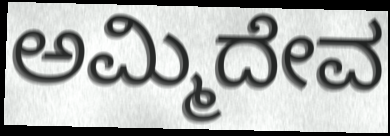
ಅಮ್ಮಿದೇವ